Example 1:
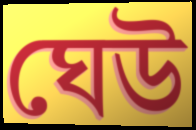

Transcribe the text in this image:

ঘেউ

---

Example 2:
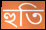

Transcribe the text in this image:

হুতি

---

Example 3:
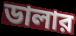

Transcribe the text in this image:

ডালার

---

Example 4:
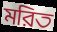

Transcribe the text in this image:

মরিত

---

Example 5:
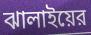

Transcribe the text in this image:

ঝালাইয়ের